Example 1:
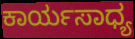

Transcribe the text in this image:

ಕಾರ್ಯಸಾಧ್ಯ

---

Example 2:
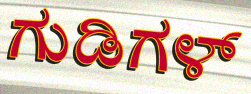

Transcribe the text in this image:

ಗುಡಿಗಳ್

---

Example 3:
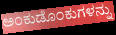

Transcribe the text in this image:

ಅಂಕುಡೊಂಕುಗಳನ್ನು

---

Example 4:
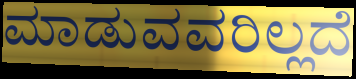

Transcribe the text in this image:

ಮಾಡುವವರಿಲ್ಲದೆ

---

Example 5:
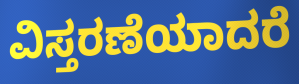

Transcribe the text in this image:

ವಿಸ್ತರಣೆಯಾದರೆ